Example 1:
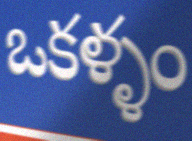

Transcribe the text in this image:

ఒకళ్ళం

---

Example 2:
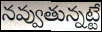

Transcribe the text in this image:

నవ్వుతున్నట్టే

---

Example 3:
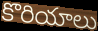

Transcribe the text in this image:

కొరియాలు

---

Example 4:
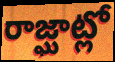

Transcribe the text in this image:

రాజ్ఘాట్లో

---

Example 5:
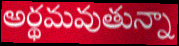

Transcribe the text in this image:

అర్థమవుతున్నా